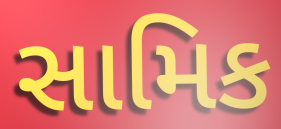
સામિક